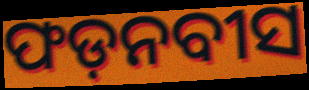
ଫଡ଼ନବୀସ